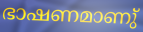
ഭാഷണമാണു്